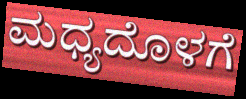
ಮಧ್ಯದೊಳಗೆ